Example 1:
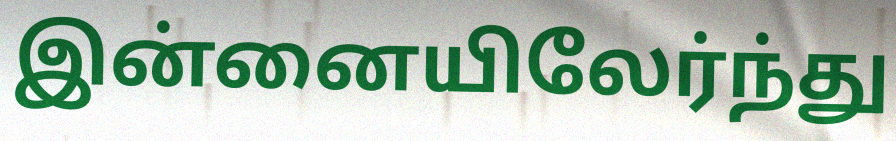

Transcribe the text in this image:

இன்னையிலேர்ந்து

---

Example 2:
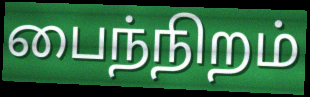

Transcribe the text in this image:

பைந்நிறம்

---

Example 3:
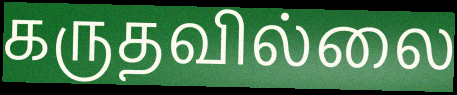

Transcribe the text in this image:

கருதவில்லை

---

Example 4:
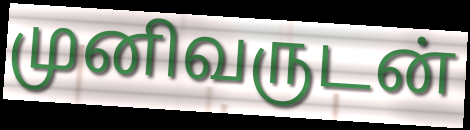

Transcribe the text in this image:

முனிவருடன்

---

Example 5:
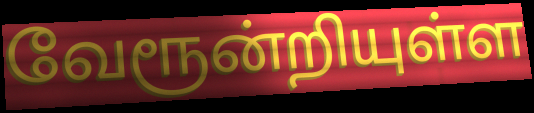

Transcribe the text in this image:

வேரூன்றியுள்ள